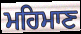
ਮਹਿਮਾਣ